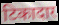
टिकादार